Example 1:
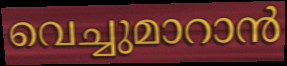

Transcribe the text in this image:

വെച്ചുമാറാൻ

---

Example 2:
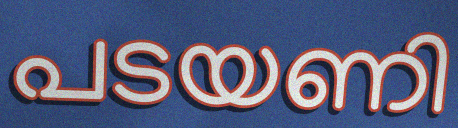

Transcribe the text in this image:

പടയണി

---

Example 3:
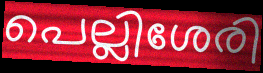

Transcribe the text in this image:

പെല്ലിശേരി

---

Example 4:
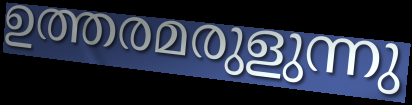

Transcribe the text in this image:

ഉത്തരമരുളുന്നു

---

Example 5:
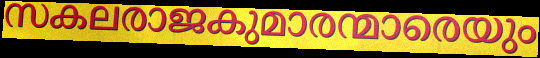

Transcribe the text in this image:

സകലരാജകുമാരന്മാരെയും